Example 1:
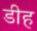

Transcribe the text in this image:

डीह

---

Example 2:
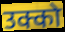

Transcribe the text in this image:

उक्को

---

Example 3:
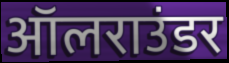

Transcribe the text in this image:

ऑलराउंडर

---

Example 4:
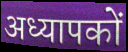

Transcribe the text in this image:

अध्यापकों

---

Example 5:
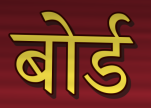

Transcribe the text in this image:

बोर्ड